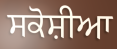
ਸਕੋਸ਼ੀਆ